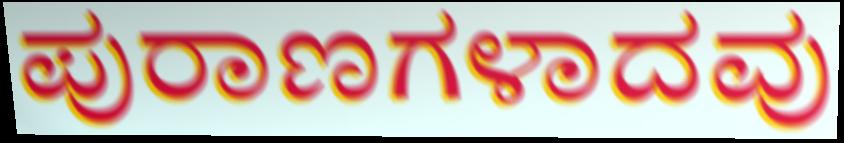
ಪುರಾಣಗಳಾದವು